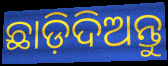
ଛାଡ଼ିଦିଅନ୍ତୁ